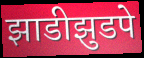
झाडीझुडपे